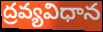
ద్రవ్యవిధాన